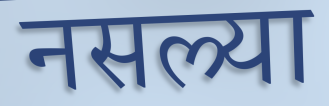
नसल्या